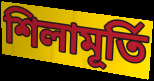
শিলামূর্তি